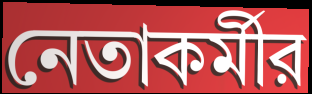
নেতাকর্মীর